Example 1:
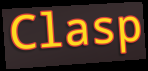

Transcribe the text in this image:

Clasp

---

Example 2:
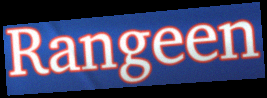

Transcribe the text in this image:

Rangeen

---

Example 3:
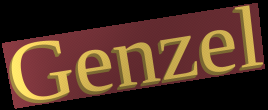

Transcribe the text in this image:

Genzel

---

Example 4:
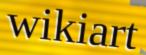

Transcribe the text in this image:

wikiart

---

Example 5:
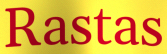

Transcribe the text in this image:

Rastas